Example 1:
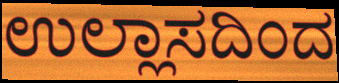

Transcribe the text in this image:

ಉಲ್ಲಾಸದಿಂದ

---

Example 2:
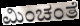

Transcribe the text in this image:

ಮಿಂಚಂತೆ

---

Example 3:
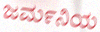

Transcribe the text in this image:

ಜರ್ಮನಿಯ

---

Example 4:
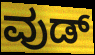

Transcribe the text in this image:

ವುಡ್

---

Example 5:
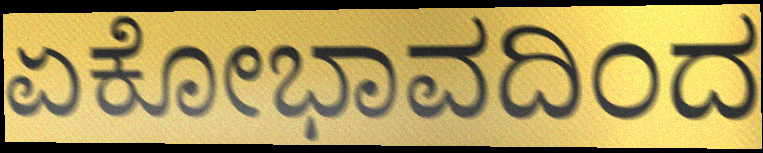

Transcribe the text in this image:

ಏಕೋಭಾವದಿಂದ